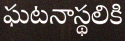
ఘటనాస్థలికి